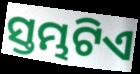
ସ୍ତମ୍ଭଟିଏ